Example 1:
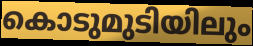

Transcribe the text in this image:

കൊടുമുടിയിലും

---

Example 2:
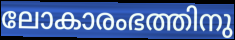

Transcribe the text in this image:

ലോകാരംഭത്തിനു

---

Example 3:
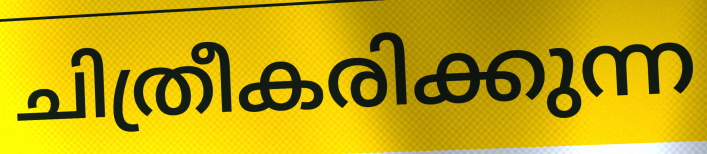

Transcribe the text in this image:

ചിത്രീകരിക്കുന്ന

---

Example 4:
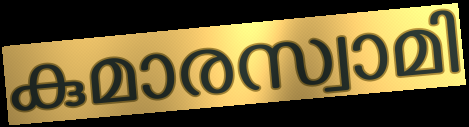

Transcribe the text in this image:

കുമാരസ്വാമി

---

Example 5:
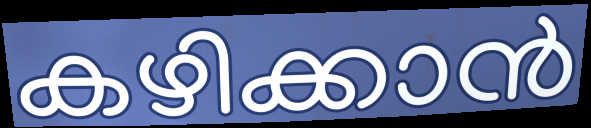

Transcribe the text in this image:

കഴിക്കാൻ